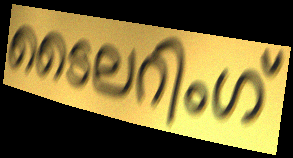
ടൈലറിംഗ്